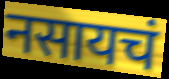
नसायचं